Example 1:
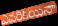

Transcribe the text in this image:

ఎవరికయినా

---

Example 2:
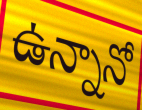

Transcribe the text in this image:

ఉన్నానో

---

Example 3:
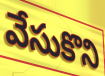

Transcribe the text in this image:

వేసుకొని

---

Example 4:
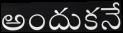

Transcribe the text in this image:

అందుకనే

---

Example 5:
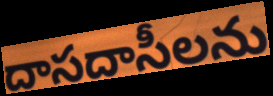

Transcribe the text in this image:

దాసదాసీలను